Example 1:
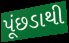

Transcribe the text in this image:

પૂંછડાથી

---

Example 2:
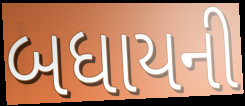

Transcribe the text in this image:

બધાયની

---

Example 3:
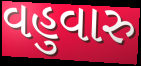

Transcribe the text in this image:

વહુવારુ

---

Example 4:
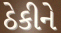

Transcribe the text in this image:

ઠેકીને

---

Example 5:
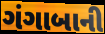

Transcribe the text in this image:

ગંગાબાની